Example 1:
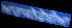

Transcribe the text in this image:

ਆਰਾਕਨੋਫੋਬੀਆ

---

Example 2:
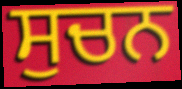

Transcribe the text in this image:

ਸੁਚਨ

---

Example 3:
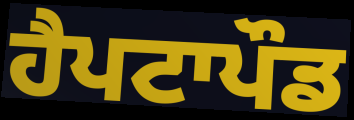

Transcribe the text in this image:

ਹੈਪਟਾਪੌਡ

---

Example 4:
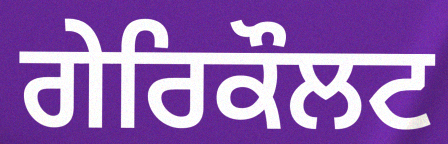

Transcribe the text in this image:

ਗੇਰਿਕੌਲਟ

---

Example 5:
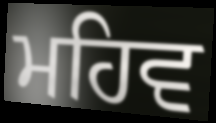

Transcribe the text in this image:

ਮਹਿਵ